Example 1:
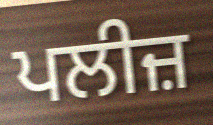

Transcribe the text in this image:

ਪਲੀਜ਼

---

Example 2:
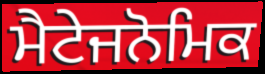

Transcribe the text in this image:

ਮੈਟੇਜਨੋਮਿਕ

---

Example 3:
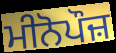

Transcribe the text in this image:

ਮੀਨੋਪੌਜ਼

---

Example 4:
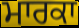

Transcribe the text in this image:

ਮਾਰਕਾ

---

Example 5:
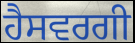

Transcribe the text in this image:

ਹੈਸਵਰਗੀ